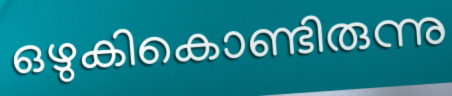
ഒഴുകികൊണ്ടിരുന്നു